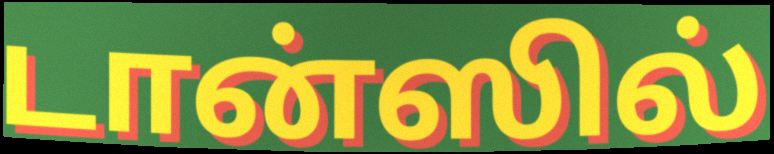
டான்ஸில்